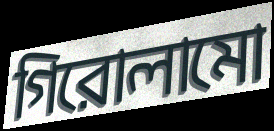
গিরোলামো